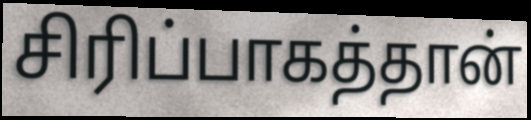
சிரிப்பாகத்தான்